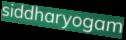
siddharyogam